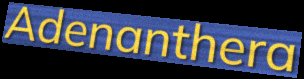
Adenanthera